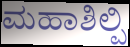
ಮಹಾಶಿಲ್ಪಿ